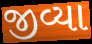
જીવ્યા